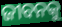
ଜୀବନକୁ